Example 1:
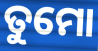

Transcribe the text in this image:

ତୁମୋ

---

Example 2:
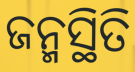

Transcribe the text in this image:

ଜନ୍ମସ୍ଥିତି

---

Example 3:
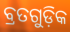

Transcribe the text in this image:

ବ୍ରତଗୁଡ଼ିକ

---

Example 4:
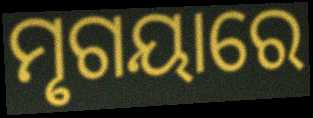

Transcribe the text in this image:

ମୃଗୟାରେ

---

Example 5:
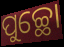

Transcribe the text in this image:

ପୁଚ୍ଛୋ